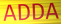
ADDA